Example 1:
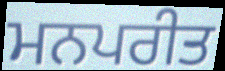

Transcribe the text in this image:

ਮਨਪਰੀਤ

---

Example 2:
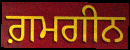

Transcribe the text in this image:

ਗ਼ਮਗੀਨ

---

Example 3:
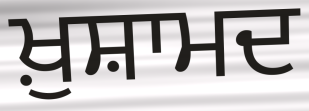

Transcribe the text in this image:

ਖ਼ੁਸ਼ਾਮਦ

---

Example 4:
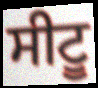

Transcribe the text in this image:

ਸੀਟੂ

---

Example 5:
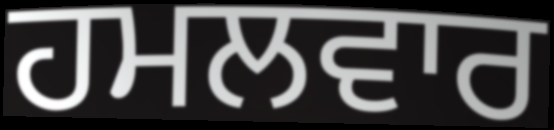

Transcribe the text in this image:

ਹਮਲਵਾਰ